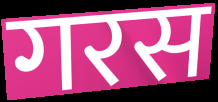
गरस